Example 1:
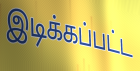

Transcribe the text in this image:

இடிக்கப்பட்ட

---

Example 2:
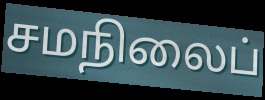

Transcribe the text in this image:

சமநிலைப்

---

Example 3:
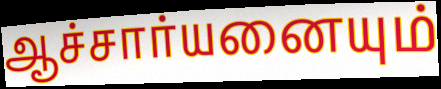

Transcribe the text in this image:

ஆச்சார்யனையும்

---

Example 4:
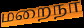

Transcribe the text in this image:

மறைநா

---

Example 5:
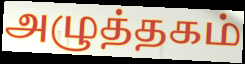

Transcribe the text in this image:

அழுத்தகம்